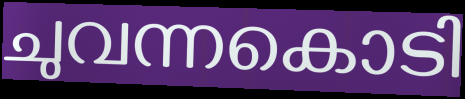
ചുവന്നകൊടി